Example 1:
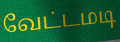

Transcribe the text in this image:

வேட்டமடி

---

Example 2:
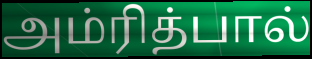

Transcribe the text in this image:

அம்ரித்பால்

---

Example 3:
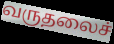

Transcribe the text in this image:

வருதலைச்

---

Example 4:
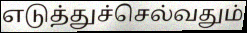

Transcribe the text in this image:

எடுத்துச்செல்வதும்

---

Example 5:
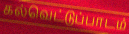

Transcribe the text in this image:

கல்வெட்டுப்பாடம்